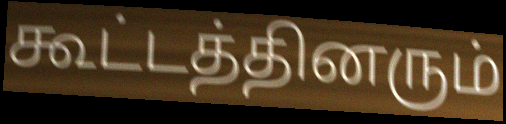
கூட்டத்தினரும்